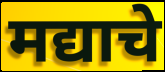
मद्याचे